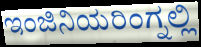
ಇಂಜಿನಿಯರಿಂಗ್ನಲ್ಲಿ